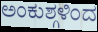
ಅಂಕುಶ್ಗಳಿಂದ